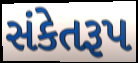
સંકેતરૂપ